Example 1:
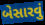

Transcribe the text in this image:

બેસારવું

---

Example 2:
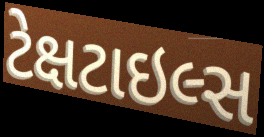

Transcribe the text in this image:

ટેક્ષટાઇલ્સ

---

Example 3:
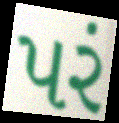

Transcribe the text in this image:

પરં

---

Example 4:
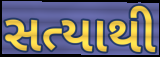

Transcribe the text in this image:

સત્યાથી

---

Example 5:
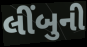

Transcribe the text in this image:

લીંબુની